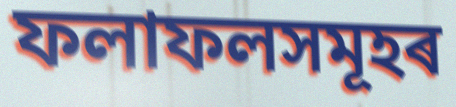
ফলাফলসমূহৰ